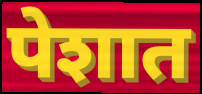
पेशात